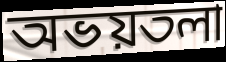
অভয়তলা